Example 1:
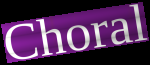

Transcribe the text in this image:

Choral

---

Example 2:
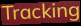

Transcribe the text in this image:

Tracking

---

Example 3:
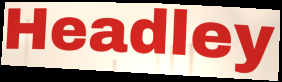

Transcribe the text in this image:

Headley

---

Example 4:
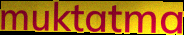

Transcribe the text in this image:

muktatma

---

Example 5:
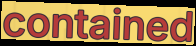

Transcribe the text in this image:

contained